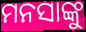
ମନସାଙ୍କୁ